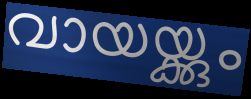
വായയ്ക്കും